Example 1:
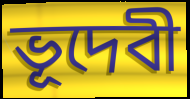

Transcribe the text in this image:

ভূদেবী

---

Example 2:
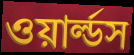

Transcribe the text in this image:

ওয়ার্ল্ডস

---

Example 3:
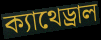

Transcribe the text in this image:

ক্যাথেড্রাল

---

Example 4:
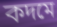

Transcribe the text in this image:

কদমে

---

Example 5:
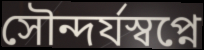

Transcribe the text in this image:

সৌন্দর্যস্বপ্নে